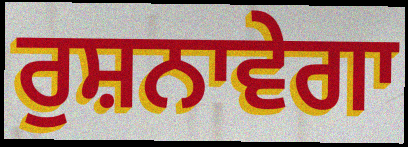
ਰੁਸ਼ਨਾਵੇਗਾ